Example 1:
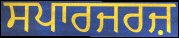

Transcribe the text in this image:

ਸਪਾਰਜਰਜ਼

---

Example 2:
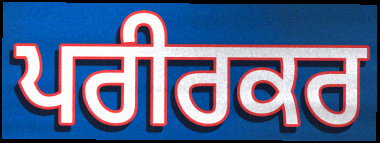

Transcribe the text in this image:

ਪਰੀਰਕਰ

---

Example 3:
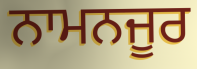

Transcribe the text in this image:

ਨਾਮਨਜੂਰ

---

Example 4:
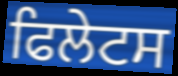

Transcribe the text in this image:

ਫਿਲੇਟਸ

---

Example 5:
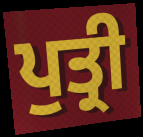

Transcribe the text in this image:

ਪੁਤ੍ਰੀ